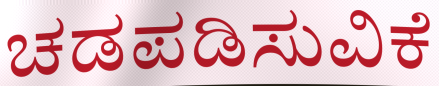
ಚಡಪಡಿಸುವಿಕೆ